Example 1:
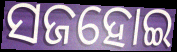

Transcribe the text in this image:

ସଜହୋଇ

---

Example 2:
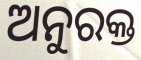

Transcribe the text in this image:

ଅନୁରକ୍ତ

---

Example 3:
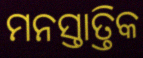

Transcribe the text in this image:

ମନସ୍ତାତ୍ତିକ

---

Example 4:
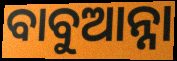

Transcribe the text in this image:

ବାବୁଆନ୍ନା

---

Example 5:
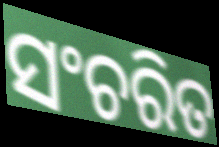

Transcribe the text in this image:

ସଂଚରିତ